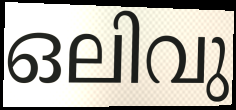
ഒലിവു